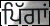
ਪਿੱਗਾਂ